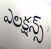
ఎలక్షన్స్